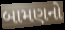
બામણનો